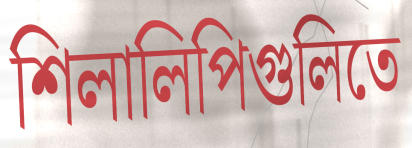
শিলালিপিগুলিতে